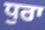
ਧੁਰਾ